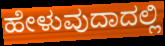
ಹೇಳುವುದಾದಲ್ಲಿ